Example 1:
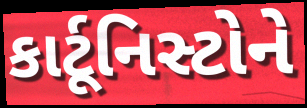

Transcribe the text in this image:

કાર્ટૂનિસ્ટોને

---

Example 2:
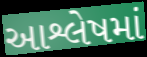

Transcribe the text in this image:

આશ્લેષમાં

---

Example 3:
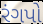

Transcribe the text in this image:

રંગપો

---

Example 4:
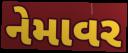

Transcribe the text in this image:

નેમાવર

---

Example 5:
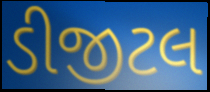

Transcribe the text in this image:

ડીજીટલ